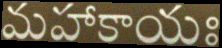
మహాకాయః